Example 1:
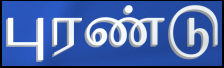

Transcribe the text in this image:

புரண்டு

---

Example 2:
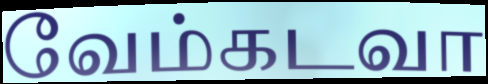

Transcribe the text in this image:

வேம்கடவா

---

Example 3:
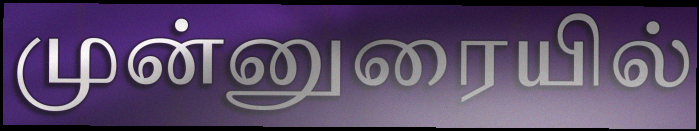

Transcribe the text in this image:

முன்னுரையில்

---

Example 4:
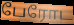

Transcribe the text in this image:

பேரோட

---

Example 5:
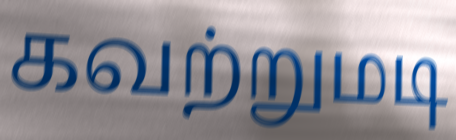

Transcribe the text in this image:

கவற்றுமடி